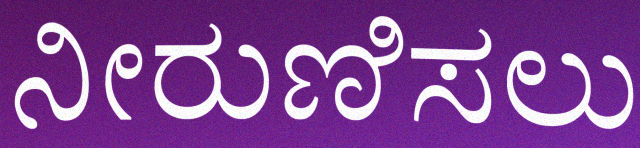
ನೀರುಣಿಸಲು